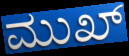
ಮುಖ್